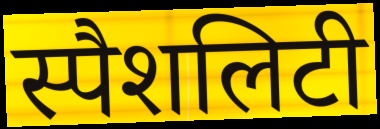
स्पैशलिटी